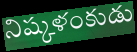
నిష్కళంకుడు